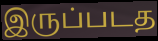
இருப்படத